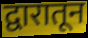
द्वारातून